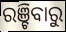
ରଞ୍ଚିବାରୁ